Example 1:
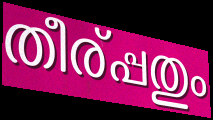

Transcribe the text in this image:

തീര്പ്പതും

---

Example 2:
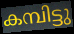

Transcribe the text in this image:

കമ്പിട്ടു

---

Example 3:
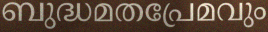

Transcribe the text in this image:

ബുദ്ധമതപ്രേമവും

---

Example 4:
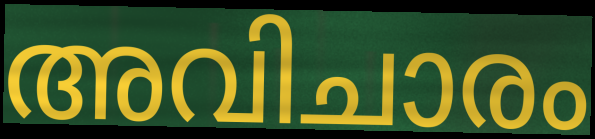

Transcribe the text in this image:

അവിചാരം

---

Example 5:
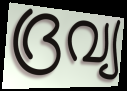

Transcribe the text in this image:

ദ്രവ്യ